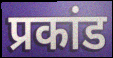
प्रकांड